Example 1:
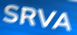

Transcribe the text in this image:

SRVA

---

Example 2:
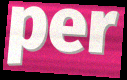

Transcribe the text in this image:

per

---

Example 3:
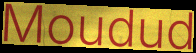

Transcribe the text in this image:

Moudud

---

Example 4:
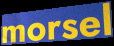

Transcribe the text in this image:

morsel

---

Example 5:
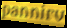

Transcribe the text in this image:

panniru